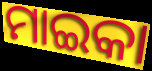
ମାଇକା